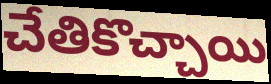
చేతికొచ్చాయి